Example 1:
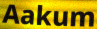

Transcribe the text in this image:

Aakum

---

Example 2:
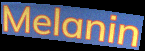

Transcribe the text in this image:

Melanin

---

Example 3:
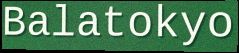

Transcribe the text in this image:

Balatokyo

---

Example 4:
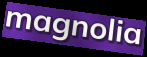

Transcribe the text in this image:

magnolia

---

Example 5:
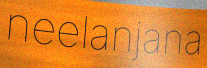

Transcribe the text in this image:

neelanjana